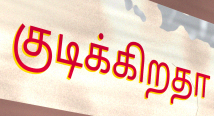
குடிக்கிறதா